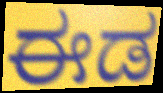
ಈಡ